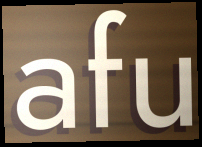
afu